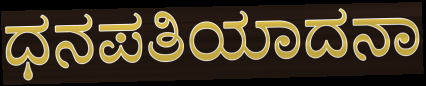
ಧನಪತಿಯಾದನಾ